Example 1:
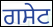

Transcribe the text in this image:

ਗਸੇਟ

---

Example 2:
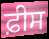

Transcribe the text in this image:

ਫ਼ੀਸ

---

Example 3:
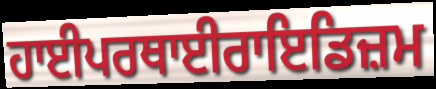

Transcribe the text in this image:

ਹਾਈਪਰਥਾਈਰਾਇਡਿਜ਼ਮ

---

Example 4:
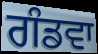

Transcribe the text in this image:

ਗੰਡਵਾ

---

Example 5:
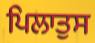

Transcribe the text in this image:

ਪਿਲਾਤੁਸ